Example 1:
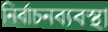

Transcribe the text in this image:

নির্বাচনব্যবস্থা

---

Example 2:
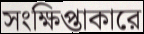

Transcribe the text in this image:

সংক্ষিপ্তাকারে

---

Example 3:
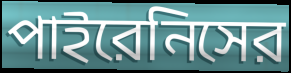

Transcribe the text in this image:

পাইরেনিসের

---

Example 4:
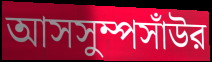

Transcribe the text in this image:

আসসুম্পসাঁউর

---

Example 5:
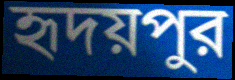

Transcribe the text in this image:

হৃদয়পুর